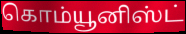
கொம்யூனிஸ்ட்